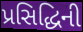
પ્રસિદ્ધિની